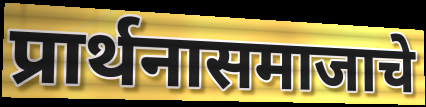
प्रार्थनासमाजाचे